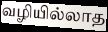
வழியில்லாத